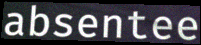
absentee